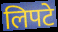
लिपटे